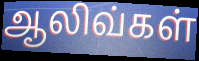
ஆலிவ்கள்